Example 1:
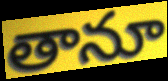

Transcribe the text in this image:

తానూ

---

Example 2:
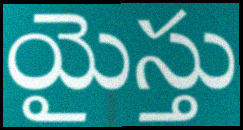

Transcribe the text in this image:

యైస్తు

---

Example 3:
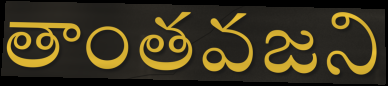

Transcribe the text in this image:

తాంతవజని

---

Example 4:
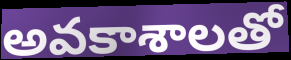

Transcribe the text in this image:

అవకాశాలతో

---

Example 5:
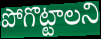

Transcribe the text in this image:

పోగొట్టాలని